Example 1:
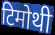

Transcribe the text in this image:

टिमोथी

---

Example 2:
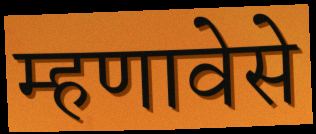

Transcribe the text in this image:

म्हणावेसे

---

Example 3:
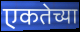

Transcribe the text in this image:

एकतेच्या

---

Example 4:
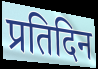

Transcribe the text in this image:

प्रतिदिन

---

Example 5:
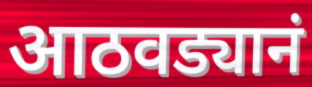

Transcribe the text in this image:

आठवड्यानं